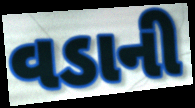
વડાની